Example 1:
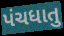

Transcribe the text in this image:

પંચધાતુ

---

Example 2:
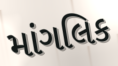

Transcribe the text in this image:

માંગલિક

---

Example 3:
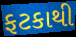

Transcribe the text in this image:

ફટકાથી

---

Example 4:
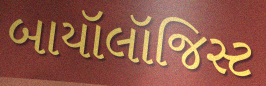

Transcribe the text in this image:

બાયૉલૉજિસ્ટ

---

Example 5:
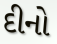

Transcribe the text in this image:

દીનો